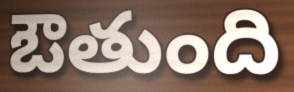
ఔతుంది